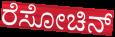
ರೆಸೋಚಿನ್